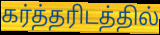
கர்த்தரிடத்தில்